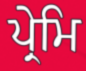
ਪ੍ਰੇਮਿ